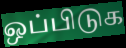
ஒப்பிடுக